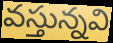
వస్తున్నవి